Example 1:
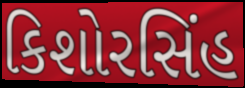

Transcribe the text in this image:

કિશોરસિંહ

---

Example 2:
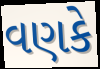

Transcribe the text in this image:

વણકે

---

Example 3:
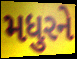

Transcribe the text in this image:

મધુરને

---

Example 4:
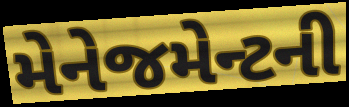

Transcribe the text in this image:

મેનેજમેન્ટની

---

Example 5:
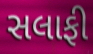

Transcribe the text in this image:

સલાફી